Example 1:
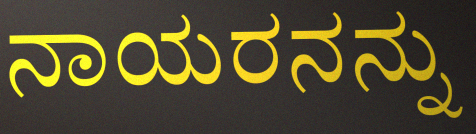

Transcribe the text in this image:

ನಾಯರನನ್ನು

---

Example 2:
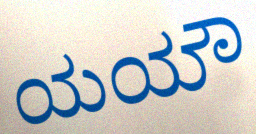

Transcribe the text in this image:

ಯಯೌ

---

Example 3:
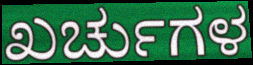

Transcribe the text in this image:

ಖರ್ಚುಗಳ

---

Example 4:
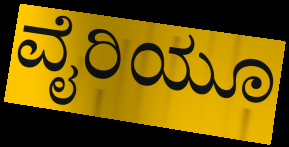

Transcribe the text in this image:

ವೈರಿಯೂ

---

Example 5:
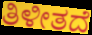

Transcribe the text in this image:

ತಿಳೀತದೆ